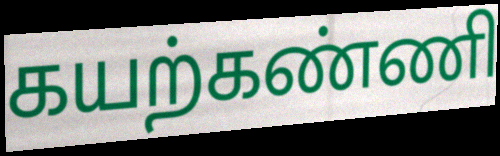
கயற்கண்ணி